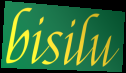
bisilu